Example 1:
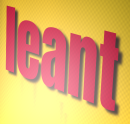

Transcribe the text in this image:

leant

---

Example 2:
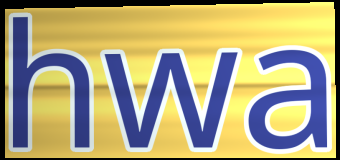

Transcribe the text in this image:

hwa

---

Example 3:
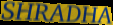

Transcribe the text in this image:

SHRADHA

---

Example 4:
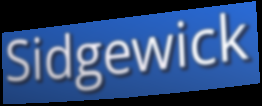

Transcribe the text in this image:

Sidgewick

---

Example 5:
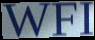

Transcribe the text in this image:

WFI